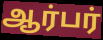
ஆர்பர்